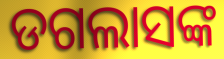
ଡଗଲାସଙ୍କ